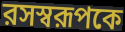
রসস্বরূপকে